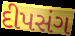
દીપસંગ